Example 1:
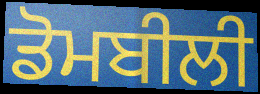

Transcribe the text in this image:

ਡੋਮਬੀਲੀ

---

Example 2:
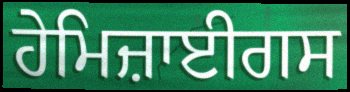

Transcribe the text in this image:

ਹੇਮਿਜ਼ਾਈਗਸ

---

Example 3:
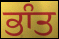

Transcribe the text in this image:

ਭਾੰਤ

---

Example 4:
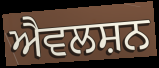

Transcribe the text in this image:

ਐਵਲਸ਼ਨ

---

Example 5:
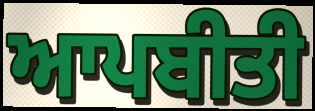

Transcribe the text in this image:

ਆਪਬੀਤੀ